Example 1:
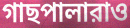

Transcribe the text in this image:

গাছপালারাও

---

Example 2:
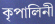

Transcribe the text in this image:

কৃপালিনী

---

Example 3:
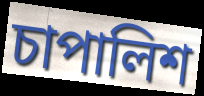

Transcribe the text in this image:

চাপালিশ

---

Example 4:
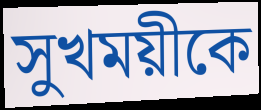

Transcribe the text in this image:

সুখময়ীকে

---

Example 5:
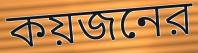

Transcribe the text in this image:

কয়জনের